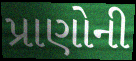
પ્રાણોની